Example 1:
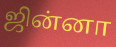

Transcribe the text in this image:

ஜின்னா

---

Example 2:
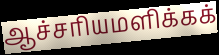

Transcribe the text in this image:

ஆச்சரியமளிக்கக்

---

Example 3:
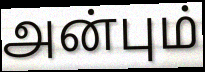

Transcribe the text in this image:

அன்பும்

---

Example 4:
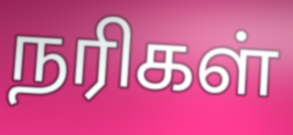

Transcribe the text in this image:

நரிகள்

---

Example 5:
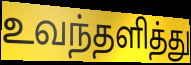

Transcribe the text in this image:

உவந்தளித்து